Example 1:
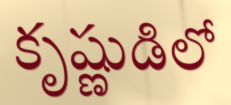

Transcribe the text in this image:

కృష్ణుడిలో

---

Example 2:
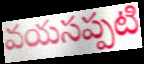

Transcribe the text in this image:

వయసప్పటి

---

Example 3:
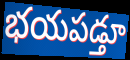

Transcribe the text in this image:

భయపడ్తూ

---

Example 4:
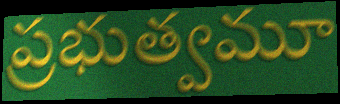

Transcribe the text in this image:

ప్రభుత్వమూ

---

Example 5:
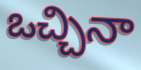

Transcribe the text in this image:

ఒచ్చినా